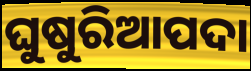
ଘୁଷୁରିଆପଦା